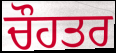
ਚੌਹਤਰ